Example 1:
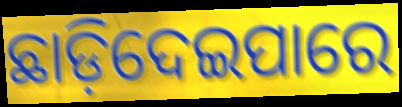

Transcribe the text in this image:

ଛାଡ଼ିଦେଇପାରେ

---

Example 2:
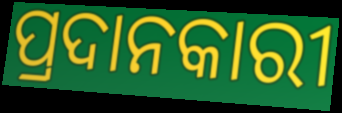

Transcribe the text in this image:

ପ୍ରଦାନକାରୀ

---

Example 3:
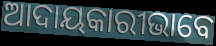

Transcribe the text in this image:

ଆଦାୟକାରୀଭାବେ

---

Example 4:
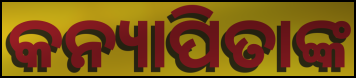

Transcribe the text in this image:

କନ୍ୟାପିତାଙ୍କ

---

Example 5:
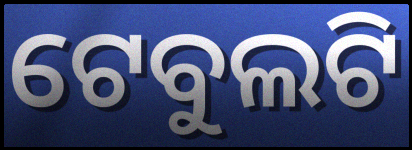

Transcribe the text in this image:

ଟେବୁଲଟି